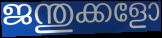
ജന്തുക്കളോ